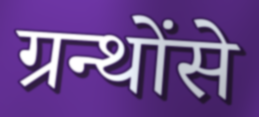
ग्रन्थोंसे